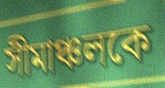
সীমাঞ্চলকে